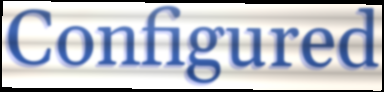
Configured